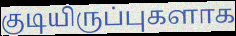
குடியிருப்புகளாக